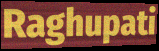
Raghupati